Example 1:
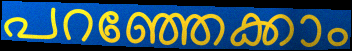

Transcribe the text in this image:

പറഞ്ഞേക്കാം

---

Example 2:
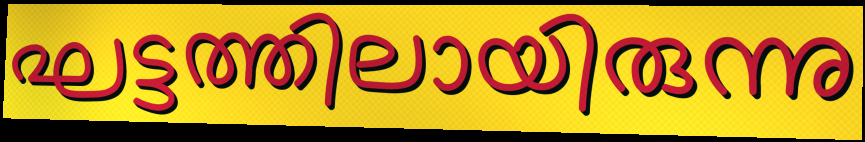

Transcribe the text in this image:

ഘട്ടത്തിലായിരുന്നു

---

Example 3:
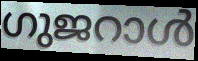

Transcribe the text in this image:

ഗുജറാൾ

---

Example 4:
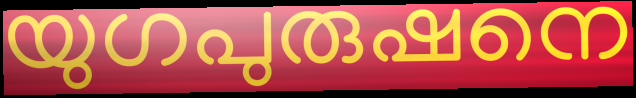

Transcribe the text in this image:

യുഗപുരുഷനെ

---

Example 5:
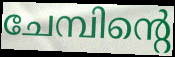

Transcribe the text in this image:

ചേമ്പിന്റെ